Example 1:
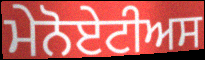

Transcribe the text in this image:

ਮੇਨੋਏਟੀਅਸ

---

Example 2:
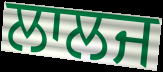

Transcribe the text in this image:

ਲਾਲਜ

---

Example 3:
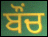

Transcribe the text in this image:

ਬੌਂਚ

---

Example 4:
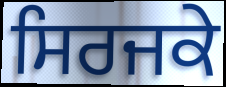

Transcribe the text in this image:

ਸਿਰਜਕੇ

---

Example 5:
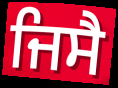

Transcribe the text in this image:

ਜਿਸੈ